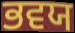
ਭਵਯ